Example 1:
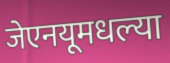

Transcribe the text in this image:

जेएनयूमधल्या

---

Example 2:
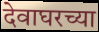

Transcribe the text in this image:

देवाघरच्या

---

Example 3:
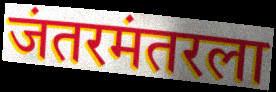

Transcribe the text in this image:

जंतरमंतरला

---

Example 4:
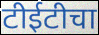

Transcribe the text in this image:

टीईटीचा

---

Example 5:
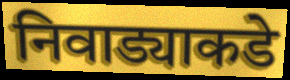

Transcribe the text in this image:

निवाड्याकडे